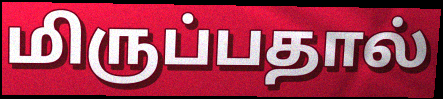
மிருப்பதால்